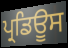
ਪ੍ਰਡਿਊਸ